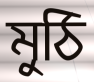
মুঠি